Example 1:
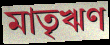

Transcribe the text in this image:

মাতৃঋণ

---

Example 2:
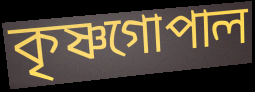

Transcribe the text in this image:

কৃষ্ণগোপাল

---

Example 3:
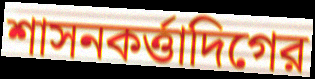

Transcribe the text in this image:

শাসনকর্ত্তাদিগের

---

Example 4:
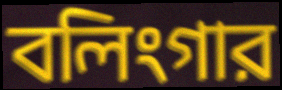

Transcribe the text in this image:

বলিংগার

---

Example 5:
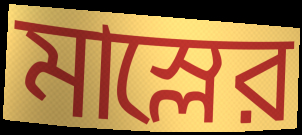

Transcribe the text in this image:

মাস্লের